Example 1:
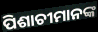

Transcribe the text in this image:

ପିଶାଚୀମାନଙ୍କ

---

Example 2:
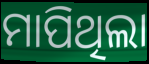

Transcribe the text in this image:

ମାପିଥିଲା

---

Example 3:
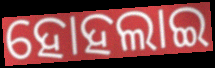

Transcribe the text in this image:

ହୋହଲାଇ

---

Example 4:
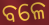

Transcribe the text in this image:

ବଳେ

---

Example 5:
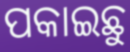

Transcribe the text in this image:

ପକାଇଛୁ